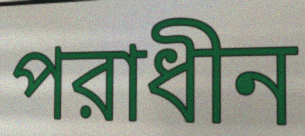
পরাধীন